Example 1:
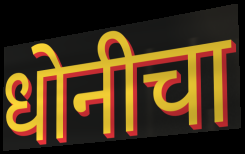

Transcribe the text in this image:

धोनीचा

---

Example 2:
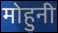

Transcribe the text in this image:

मोहुनी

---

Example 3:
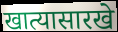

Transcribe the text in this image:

खात्यासारखे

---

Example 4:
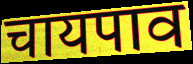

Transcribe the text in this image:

चायपाव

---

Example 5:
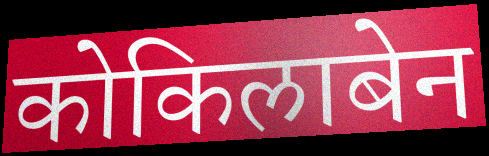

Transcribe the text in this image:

कोकिलाबेन